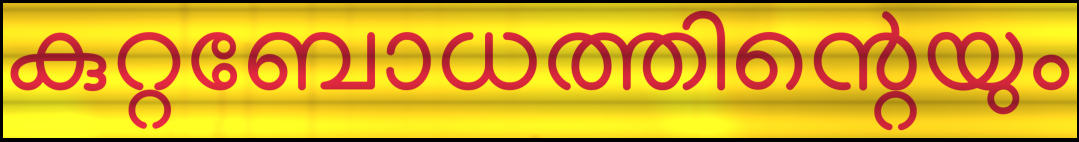
കുറ്റബോധത്തിന്റെയും